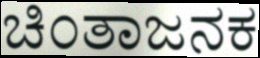
ಚಿಂತಾಜನಕ